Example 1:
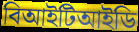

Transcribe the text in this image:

বিআইটিআইডি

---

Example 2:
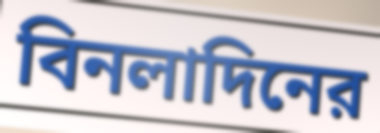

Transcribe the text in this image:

বিনলাদিনের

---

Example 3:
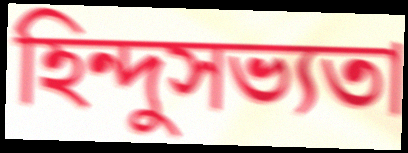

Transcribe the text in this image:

হিন্দুসভ্যতা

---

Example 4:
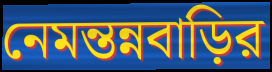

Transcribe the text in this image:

নেমন্তন্নবাড়ির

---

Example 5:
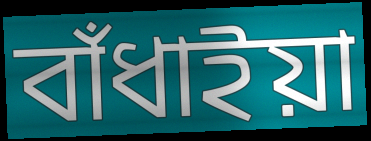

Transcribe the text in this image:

বাঁধাইয়া